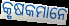
କୃଷକମାନେ